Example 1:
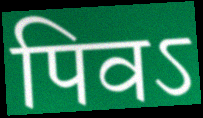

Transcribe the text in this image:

पिवऽ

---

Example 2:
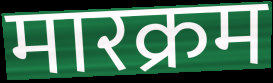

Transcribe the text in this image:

मारक्रम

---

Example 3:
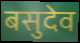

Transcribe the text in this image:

बसुदेव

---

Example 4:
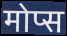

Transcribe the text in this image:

मोप्स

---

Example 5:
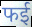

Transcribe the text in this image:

फई